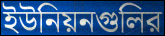
ইউনিয়নগুলির